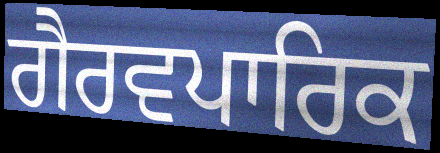
ਗੈਰਵਪਾਰਿਕ